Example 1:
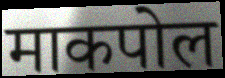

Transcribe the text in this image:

माकपोल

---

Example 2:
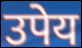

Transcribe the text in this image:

उपेय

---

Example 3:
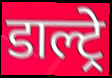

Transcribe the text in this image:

डाल्ट्रे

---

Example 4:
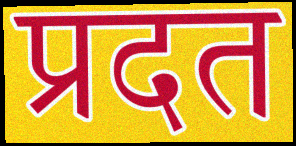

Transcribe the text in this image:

प्रदत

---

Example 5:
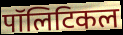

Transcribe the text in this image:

पॉलिटिकल